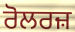
ਰੋਲਰਜ਼